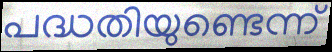
പദ്ധതിയുണ്ടെന്ന്